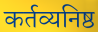
कर्तव्यनिष्ठ